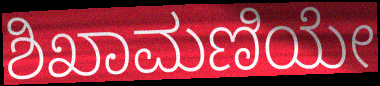
ಶಿಖಾಮಣಿಯೇ